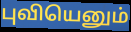
புவியெனும்